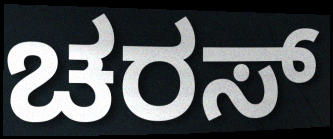
ಚರಸ್